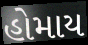
હોમાય